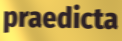
praedicta